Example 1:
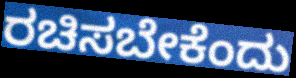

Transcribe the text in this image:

ರಚಿಸಬೇಕೆಂದು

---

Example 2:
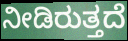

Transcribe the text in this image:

ನೀಡಿರುತ್ತದೆ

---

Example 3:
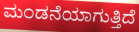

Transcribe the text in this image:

ಮಂಡನೆಯಾಗುತ್ತಿದೆ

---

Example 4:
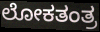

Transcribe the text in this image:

ಲೋಕತಂತ್ರ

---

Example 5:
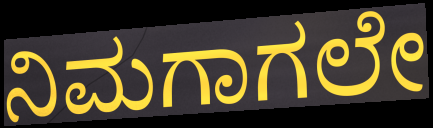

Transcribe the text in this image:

ನಿಮಗಾಗಲೇ